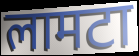
लामटा